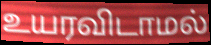
உயரவிடாமல்